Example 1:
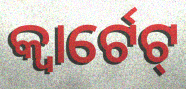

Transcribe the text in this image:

କ୍ୱାର୍ଟେଟ୍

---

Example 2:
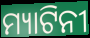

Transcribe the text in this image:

ମ୍ୟାଟିନୀ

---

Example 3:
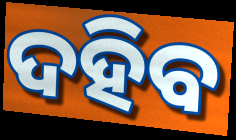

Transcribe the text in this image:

ଦହିବ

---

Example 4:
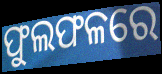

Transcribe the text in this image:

ଫୁଲଫଳରେ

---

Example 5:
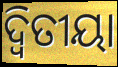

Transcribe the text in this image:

ଦ୍ୱିତୀୟା